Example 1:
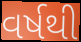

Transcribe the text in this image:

વર્ષથી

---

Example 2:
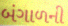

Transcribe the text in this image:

બંગાળની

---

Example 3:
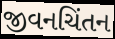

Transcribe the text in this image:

જીવનચિંતન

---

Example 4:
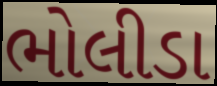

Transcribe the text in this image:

ભોલીડા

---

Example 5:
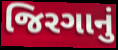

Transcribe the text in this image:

જિરગાનું